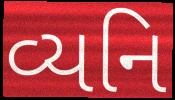
વ્યનિ